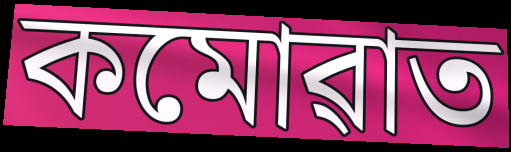
কমোৱাত